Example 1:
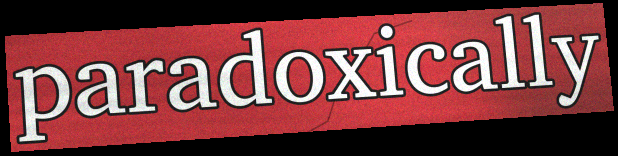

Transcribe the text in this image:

paradoxically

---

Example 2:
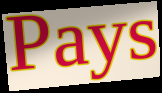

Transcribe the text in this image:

Pays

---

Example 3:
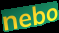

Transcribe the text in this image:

nebo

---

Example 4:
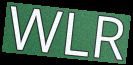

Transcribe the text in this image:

WLR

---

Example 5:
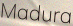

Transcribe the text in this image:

Madura